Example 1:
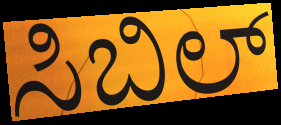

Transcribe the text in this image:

ಸಿಬಿಲ್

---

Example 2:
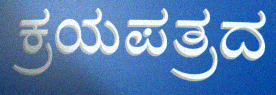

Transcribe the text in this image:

ಕ್ರಯಪತ್ರದ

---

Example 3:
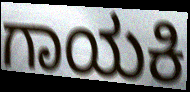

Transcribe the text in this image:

ಗಾಯಕಿ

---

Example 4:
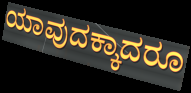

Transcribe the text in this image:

ಯಾವುದಕ್ಕಾದರೂ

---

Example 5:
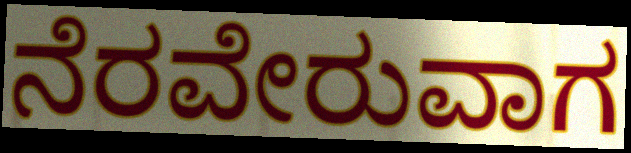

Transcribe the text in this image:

ನೆರವೇರುವಾಗ